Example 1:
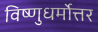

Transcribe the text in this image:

विष्णुधर्मोत्तर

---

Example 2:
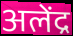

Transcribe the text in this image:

अलेंद्र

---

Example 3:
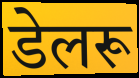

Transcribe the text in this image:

डेलरू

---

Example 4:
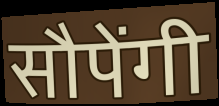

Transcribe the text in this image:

सौपेंगी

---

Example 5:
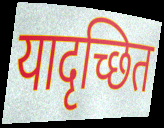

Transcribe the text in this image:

यादृच्छित